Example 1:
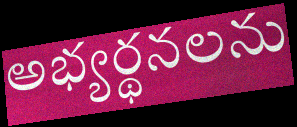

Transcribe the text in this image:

అభ్యర్థనలను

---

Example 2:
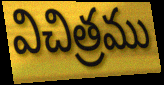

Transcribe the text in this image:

విచిత్రము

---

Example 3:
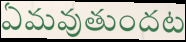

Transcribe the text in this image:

ఏమవుతుందట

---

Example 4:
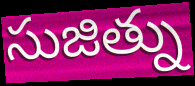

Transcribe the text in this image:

సుజిత్ను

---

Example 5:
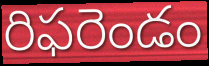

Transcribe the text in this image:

రిఫరెండం